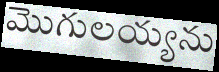
మొగులయ్యను